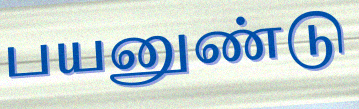
பயனுண்டு